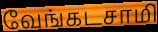
வேங்கடசாமி